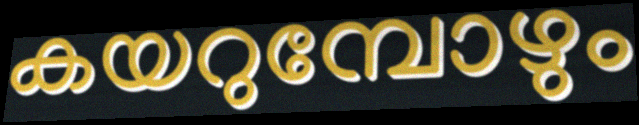
കയറുമ്പോഴും